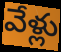
వేళ్లు